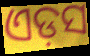
ଏଡ଼ସ